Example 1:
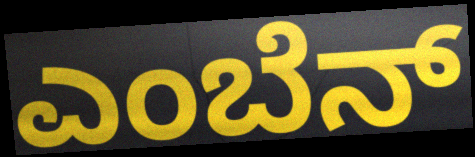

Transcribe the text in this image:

ಎಂಬೆನ್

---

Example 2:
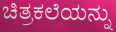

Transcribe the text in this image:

ಚಿತ್ರಕಲೆಯನ್ನು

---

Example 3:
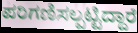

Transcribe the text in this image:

ಪರಿಗಣಿಸಲ್ಪಟ್ಟಿದ್ದಾರೆ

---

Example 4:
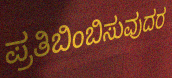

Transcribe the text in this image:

ಪ್ರತಿಬಿಂಬಿಸುವುದರ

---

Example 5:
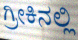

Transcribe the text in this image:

ಗ್ರೀಕಿನಲ್ಲಿ